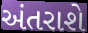
અંતરાશે